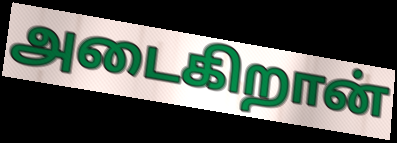
அடைகிறான்